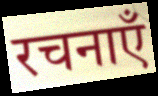
रचनाएँ